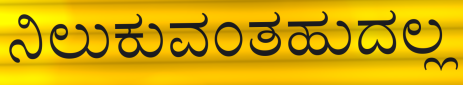
ನಿಲುಕುವಂತಹುದಲ್ಲ